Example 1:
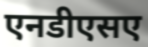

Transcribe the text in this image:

एनडीएसए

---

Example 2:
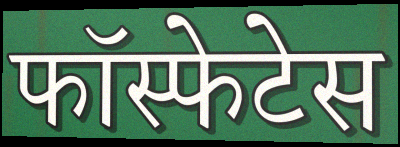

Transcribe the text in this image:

फॉस्फेटेस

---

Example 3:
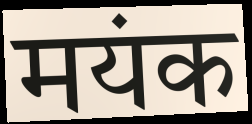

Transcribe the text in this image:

मयंक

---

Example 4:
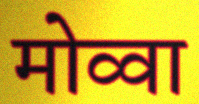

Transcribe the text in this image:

मोव्वा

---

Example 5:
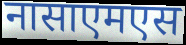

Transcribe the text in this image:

नासाएमएस